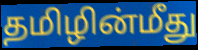
தமிழின்மீது